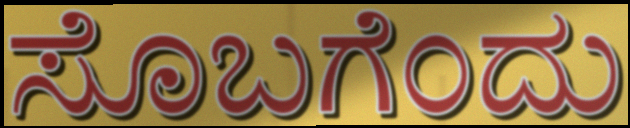
ಸೊಬಗೆಂದು